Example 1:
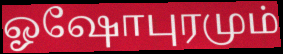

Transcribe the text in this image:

ஓஷோபுரமும்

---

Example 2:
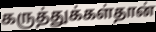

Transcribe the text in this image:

கருத்துக்கள்தான்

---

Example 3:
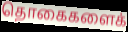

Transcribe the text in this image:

தொகைகளைக்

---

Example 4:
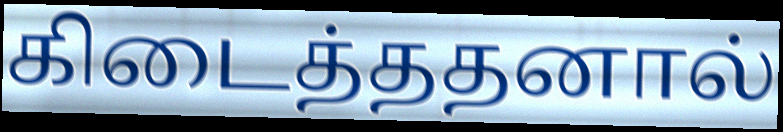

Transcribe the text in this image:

கிடைத்ததனால்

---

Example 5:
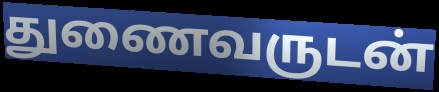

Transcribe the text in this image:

துணைவருடன்